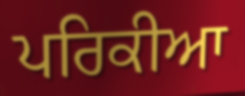
ਪਰਿਕੀਆ